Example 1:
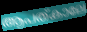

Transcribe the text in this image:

ആപത്കാലേ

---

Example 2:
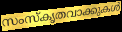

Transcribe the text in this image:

സംസ്കൃതവാക്കുകൾ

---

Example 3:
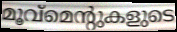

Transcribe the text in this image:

മൂവ്മെന്റുകളുടെ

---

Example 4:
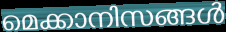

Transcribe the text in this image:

മെക്കാനിസങ്ങൾ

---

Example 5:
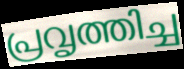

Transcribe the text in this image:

പ്രവൃത്തിച്ച